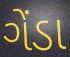
ગેંડા